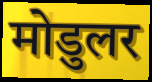
मोडुलर